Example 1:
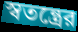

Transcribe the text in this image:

স্বতন্ত্রের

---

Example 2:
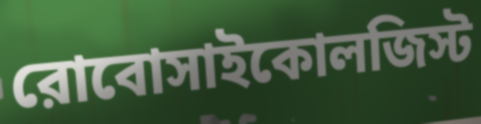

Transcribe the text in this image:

রোবোসাইকোলজিস্ট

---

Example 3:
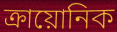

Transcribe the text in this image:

ক্রায়োনিক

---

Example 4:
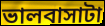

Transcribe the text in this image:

ভালবাসাটা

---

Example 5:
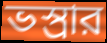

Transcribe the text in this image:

ভস্ত্রার